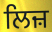
ਲਿਜ਼